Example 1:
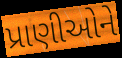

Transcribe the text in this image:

પ્રાણીઓને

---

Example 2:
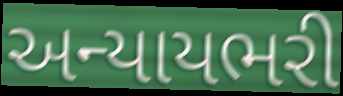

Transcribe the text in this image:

અન્યાયભરી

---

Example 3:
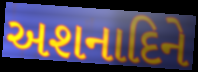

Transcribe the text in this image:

અશનાદિને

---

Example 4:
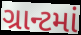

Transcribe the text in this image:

ગ્રાન્ટમાં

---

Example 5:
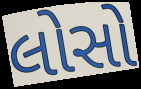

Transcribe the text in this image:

લોસો